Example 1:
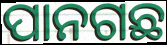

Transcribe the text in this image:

ପାନଗଛ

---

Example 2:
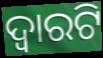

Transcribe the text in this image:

ଦ୍ୱାରଟି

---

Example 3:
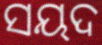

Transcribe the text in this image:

ସୟଦ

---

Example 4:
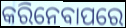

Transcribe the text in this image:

କରିନେବାପରେ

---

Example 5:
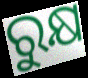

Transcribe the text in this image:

ରୁକ୍ଷ